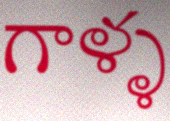
గాళ్ళ